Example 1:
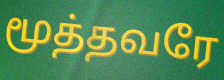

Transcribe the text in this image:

மூத்தவரே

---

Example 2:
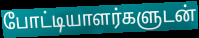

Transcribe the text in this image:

போட்டியாளர்களுடன்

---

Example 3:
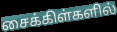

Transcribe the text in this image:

சைக்கிள்களில்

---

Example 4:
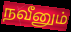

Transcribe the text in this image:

நவீனும்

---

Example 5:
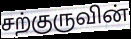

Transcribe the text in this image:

சற்குருவின்